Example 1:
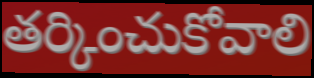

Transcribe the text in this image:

తర్కించుకోవాలి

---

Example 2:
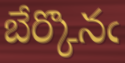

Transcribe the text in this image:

బేర్కొనఁ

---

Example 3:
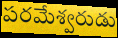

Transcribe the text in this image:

పరమేశ్వరుడు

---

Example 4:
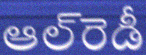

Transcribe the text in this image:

ఆల్‌రెడీ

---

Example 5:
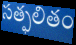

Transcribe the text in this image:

సత్ఫలితం